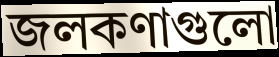
জলকণাগুলো